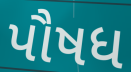
પૌષધ